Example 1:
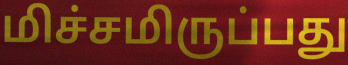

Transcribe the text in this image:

மிச்சமிருப்பது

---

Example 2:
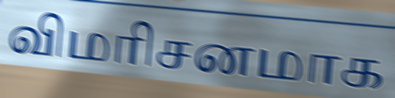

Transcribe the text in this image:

விமரிசனமாக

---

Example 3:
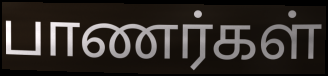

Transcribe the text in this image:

பாணர்கள்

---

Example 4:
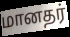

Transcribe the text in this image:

மானதர்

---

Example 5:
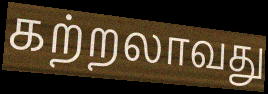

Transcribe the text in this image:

கற்றலாவது